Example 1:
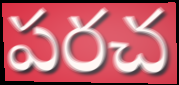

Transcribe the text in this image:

పరచ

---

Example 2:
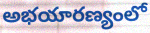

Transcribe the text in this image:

అభయారణ్యంలో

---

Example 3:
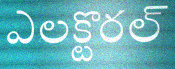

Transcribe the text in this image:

ఎలక్టొరల్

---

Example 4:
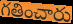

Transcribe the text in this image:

గతించారు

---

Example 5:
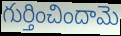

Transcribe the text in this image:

గుర్తించిందామె